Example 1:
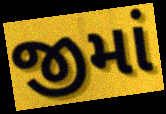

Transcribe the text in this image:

જીમાં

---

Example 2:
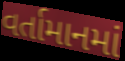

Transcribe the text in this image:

વર્તામાનમાં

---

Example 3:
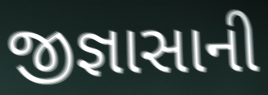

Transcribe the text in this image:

જીજ્ઞાસાની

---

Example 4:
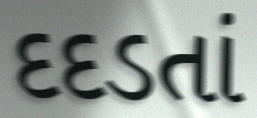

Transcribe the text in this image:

દદડતાં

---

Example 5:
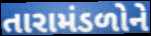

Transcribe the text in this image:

તારામંડળોને